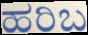
ಹರಿಬ